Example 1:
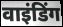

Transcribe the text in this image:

वाइंडिंग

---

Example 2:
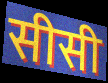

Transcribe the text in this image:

सीसी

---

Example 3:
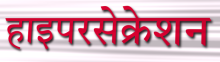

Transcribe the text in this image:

हाइपरसेक्रेशन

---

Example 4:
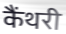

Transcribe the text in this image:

कैंथरी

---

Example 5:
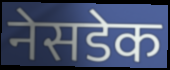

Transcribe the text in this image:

नेसडेक